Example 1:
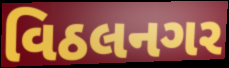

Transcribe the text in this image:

વિઠલનગર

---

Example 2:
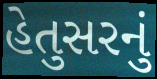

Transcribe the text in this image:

હેતુસરનું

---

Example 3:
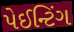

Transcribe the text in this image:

પેઈન્ટિંગ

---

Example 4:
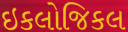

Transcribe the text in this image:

ઇકલોજિકલ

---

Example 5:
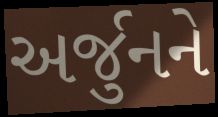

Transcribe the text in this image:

અર્જુનને